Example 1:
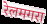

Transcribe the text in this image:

रेलमगरा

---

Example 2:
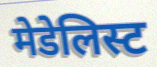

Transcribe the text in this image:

मेडेलिस्ट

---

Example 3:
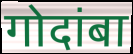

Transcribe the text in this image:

गोदांबा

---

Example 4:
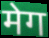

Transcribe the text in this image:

मेग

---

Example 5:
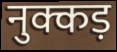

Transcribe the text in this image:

नुक्कड़